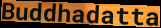
Buddhadatta